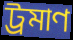
ট্রমাণ